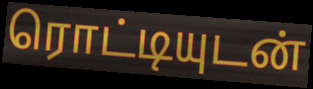
ரொட்டியுடன்